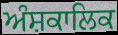
ਅੰਸ਼ਕਾਲਿਕ